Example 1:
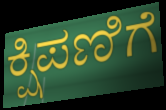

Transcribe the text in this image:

ಕ್ಷಿಪಣಿಗೆ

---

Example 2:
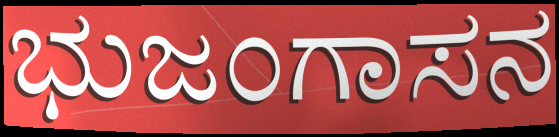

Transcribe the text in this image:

ಭುಜಂಗಾಸನ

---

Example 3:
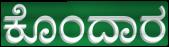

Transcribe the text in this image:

ಕೊಂದಾರ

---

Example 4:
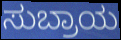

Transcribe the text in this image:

ಸುಬ್ರಾಯ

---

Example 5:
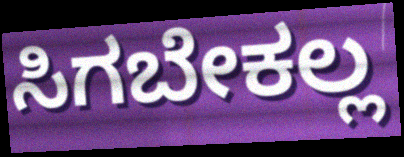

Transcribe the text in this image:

ಸಿಗಬೇಕಲ್ಲ